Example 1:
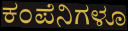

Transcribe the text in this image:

ಕಂಪೆನಿಗಳೂ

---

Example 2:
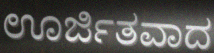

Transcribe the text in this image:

ಊರ್ಜಿತವಾದ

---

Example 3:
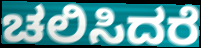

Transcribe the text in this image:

ಚಲಿಸಿದರೆ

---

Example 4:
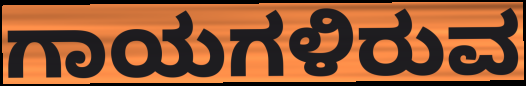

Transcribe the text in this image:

ಗಾಯಗಳಿರುವ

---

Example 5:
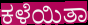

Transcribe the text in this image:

ಕಳೆಯಿತಾ